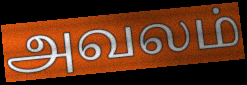
அவலம்